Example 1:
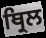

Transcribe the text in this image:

ਥ੍ਰਿਲ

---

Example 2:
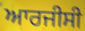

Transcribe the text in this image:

ਆਰਜੀਸੀ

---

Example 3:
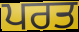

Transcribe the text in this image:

ਪਰਤ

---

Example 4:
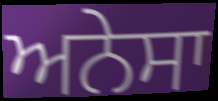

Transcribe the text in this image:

ਅਨੇਸਾ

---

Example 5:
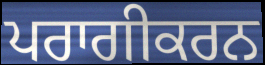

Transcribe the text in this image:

ਪਰਾਗੀਕਰਨ